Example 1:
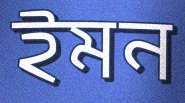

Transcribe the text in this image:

ইমন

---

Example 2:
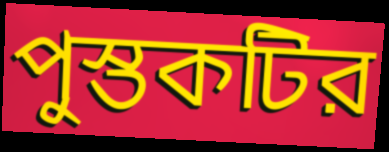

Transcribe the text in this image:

পুস্তকটির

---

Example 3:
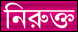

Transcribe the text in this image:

নিরুক্ত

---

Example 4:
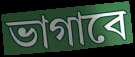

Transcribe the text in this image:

ভাগাবে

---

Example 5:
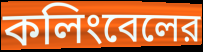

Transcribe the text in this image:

কলিংবেলের